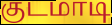
குடமாடி